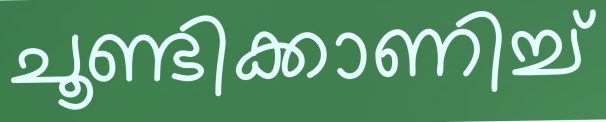
ചൂണ്ടിക്കാണിച്ച്